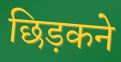
छिड़कने